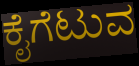
ಕೈಗೆಟುವ